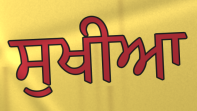
ਸੁਖੀਆ